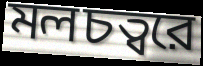
মলচত্বরে